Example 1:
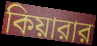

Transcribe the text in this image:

কিয়ারার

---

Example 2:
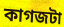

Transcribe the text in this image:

কাগজটা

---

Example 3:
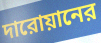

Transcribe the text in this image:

দারোয়ানের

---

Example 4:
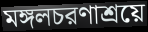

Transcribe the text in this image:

মঙ্গলচরণাশ্রয়ে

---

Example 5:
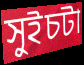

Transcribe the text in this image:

সুইচটা